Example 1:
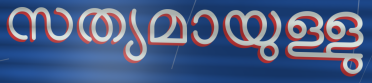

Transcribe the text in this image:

സത്യമായുള്ളു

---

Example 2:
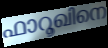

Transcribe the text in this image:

ഫാറൂഖിനെ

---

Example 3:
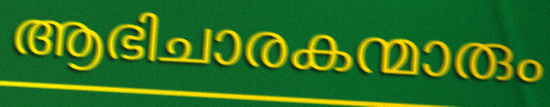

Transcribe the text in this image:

ആഭിചാരകന്മാരും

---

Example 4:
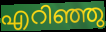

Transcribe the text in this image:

എറിഞ്ഞു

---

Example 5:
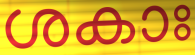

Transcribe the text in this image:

ശകാഃ